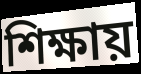
শিক্ষায়